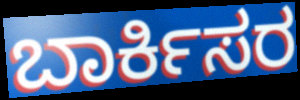
ಬಾರ್ಕಿಸರ